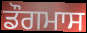
ਡੌਗਮਾਸ